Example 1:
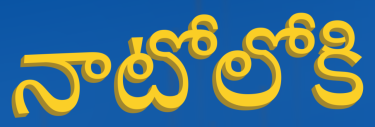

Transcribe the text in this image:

నాటోలోకి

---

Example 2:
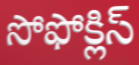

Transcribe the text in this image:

సోఫోక్లిస్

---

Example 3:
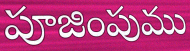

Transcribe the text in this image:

పూజింపుము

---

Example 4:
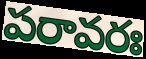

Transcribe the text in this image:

పరావరః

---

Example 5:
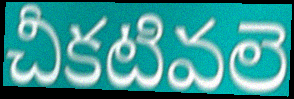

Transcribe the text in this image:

చీకటివలె